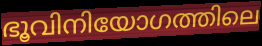
ഭൂവിനിയോഗത്തിലെ